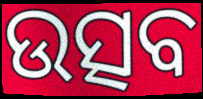
ଉତ୍ସବ